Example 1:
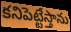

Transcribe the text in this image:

కనిపెట్టేస్తాను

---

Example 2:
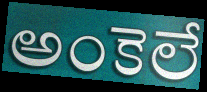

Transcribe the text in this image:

అంకెలే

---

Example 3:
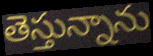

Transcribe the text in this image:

తెస్తున్నాను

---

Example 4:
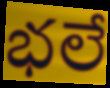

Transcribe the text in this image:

భలే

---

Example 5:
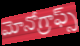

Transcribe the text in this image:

మోనోగ్రాఫ్స్